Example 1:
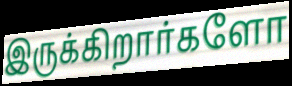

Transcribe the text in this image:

இருக்கிறார்களோ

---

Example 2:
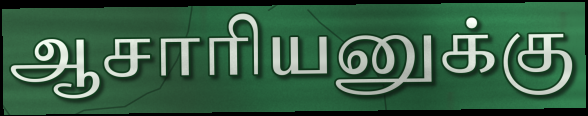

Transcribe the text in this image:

ஆசாரியனுக்கு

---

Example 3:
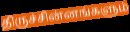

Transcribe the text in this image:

திருச்சின்னங்களும்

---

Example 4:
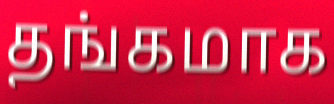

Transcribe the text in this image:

தங்கமாக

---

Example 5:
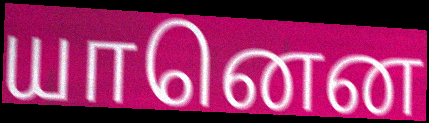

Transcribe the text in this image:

யானென